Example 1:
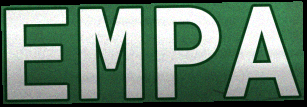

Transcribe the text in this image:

EMPA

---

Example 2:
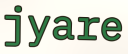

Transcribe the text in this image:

jyare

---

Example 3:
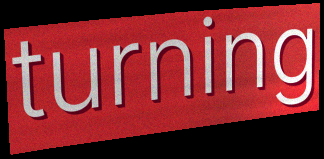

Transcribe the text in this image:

turning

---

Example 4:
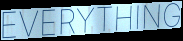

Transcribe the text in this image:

EVERYTHING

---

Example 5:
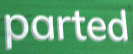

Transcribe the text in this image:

parted